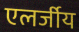
एलर्जीय